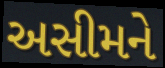
અસીમને